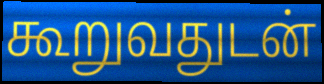
கூறுவதுடன்